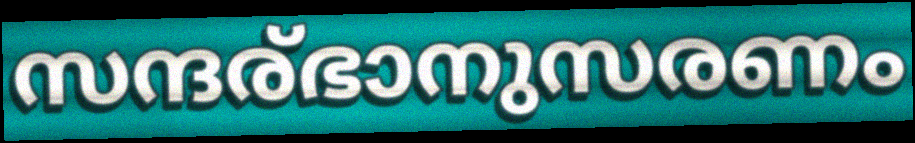
സന്ദര്ഭാനുസരണം